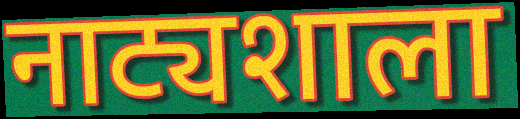
नाट्यशाला